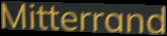
Mitterrand